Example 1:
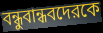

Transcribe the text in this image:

বন্ধুবান্ধবদেরকে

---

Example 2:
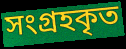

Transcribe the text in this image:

সংগ্রহকৃত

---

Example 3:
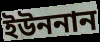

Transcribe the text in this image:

ইউননান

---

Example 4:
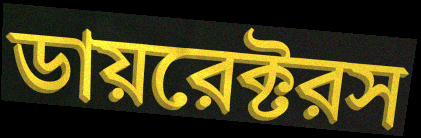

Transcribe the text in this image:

ডায়রেক্টরস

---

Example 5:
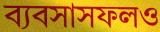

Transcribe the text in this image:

ব্যবসাসফলও